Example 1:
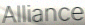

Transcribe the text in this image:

Alliance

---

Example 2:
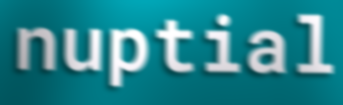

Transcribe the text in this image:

nuptial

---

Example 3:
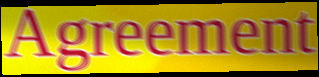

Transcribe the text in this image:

Agreement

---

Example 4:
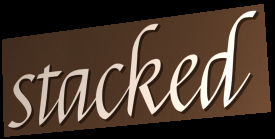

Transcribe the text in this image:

stacked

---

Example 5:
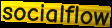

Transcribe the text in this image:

socialflow